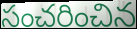
సంచరించిన